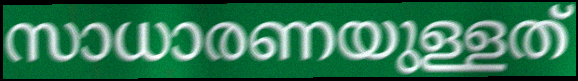
സാധാരണയുള്ളത്